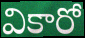
వికారో